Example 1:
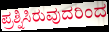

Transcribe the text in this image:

ಪ್ರಶ್ನಿಸಿರುವುದರಿಂದ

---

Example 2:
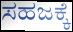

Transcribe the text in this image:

ಸಹಜಕ್ಕೆ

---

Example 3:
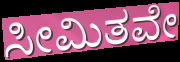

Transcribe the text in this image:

ಸೀಮಿತವೇ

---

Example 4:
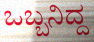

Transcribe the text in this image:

ಒಬ್ಬನಿದ್ದ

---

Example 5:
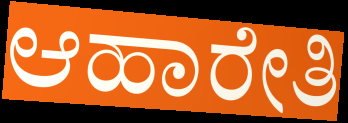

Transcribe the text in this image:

ಆಹಾರೇತಿ